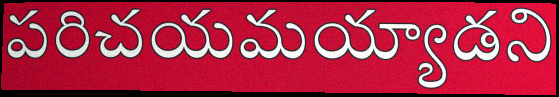
పరిచయమయ్యాడని